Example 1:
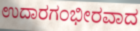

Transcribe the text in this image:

ಉದಾರಗಂಭೀರವಾದ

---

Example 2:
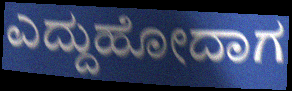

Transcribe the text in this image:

ಎದ್ದುಹೋದಾಗ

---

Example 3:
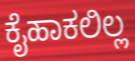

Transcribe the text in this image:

ಕೈಹಾಕಲಿಲ್ಲ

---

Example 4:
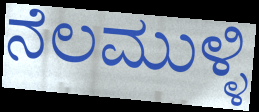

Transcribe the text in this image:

ನೆಲಮುಳ್ಳಿ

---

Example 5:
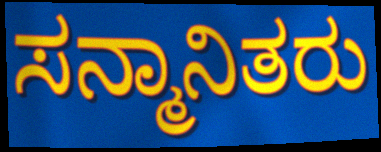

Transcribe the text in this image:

ಸನ್ಮಾನಿತರು